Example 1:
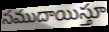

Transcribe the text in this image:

సముదాయిస్తూ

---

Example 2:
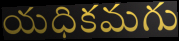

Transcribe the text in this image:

యధికమగు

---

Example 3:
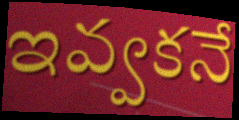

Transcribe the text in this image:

ఇవ్వకనే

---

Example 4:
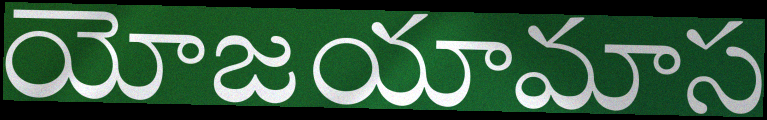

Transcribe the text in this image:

యోజయామాస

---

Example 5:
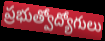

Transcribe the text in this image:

ప్రభుత్వోద్యోగులు